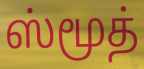
ஸ்மூத்